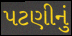
પટણીનું